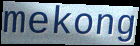
mekong